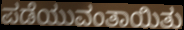
ಪಡೆಯುವಂತಾಯಿತು